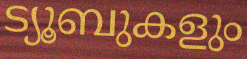
ട്യൂബുകളും